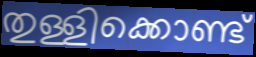
തുള്ളിക്കൊണ്ട്